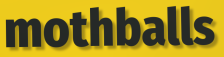
mothballs